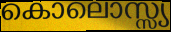
കൊലൊസ്സ്യ